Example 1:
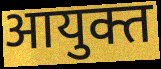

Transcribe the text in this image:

आयुक्‍त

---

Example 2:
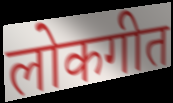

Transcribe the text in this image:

लोकगीत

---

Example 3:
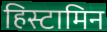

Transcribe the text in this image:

हिस्टामिन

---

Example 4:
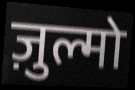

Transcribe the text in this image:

ज़ुल्मो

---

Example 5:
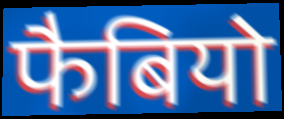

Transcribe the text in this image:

फैबियो